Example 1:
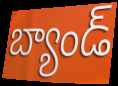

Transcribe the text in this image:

బ్యాండ్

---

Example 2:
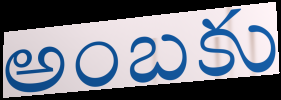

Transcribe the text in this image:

అంబకు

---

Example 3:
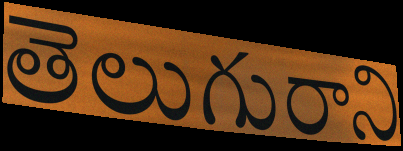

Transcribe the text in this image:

తెలుగురాని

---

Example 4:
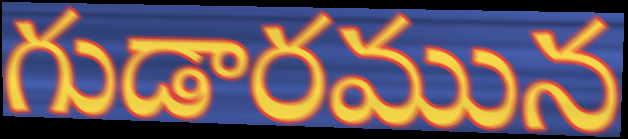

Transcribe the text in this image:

గుడారమున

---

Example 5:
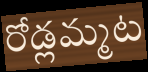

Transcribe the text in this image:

రోడ్లమ్మట